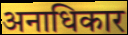
अनाधिकार